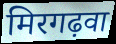
मिरगढ़वा